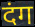
दंग